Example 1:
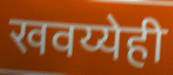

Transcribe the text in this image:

खवय्येही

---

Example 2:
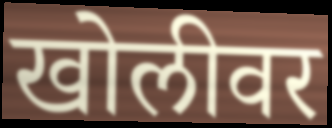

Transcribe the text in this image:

खोलीवर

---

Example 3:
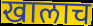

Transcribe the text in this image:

खालाच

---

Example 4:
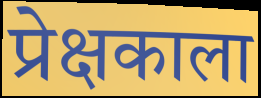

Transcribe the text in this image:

प्रेक्षकाला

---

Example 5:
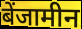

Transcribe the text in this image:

बेंजामीन